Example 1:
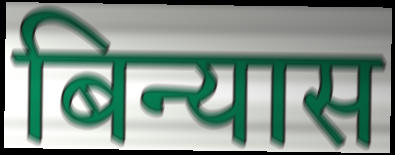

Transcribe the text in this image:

बिन्यास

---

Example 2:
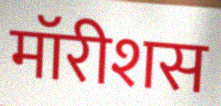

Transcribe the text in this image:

मॉरीशस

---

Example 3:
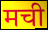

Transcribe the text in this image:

मची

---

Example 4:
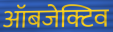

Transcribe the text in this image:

ऑबजेक्टिव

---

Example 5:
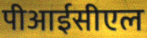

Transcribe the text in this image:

पीआईसीएल